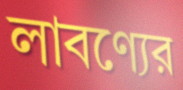
লাবণ্যের